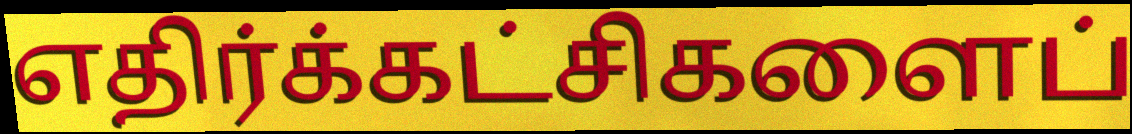
எதிர்க்கட்சிகளைப்